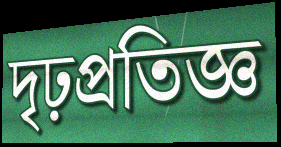
দৃঢ়প্রতিজ্ঞ